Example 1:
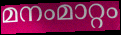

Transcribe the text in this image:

മനംമാറ്റം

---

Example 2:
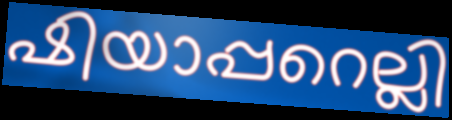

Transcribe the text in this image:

ഷിയാപ്പറെല്ലി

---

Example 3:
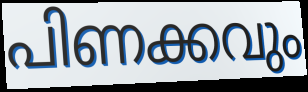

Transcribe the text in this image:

പിണക്കവും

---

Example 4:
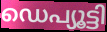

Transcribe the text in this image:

ഡെപ്യൂട്ടി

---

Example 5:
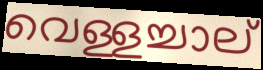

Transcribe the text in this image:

വെള്ളച്ചാല്